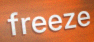
freeze